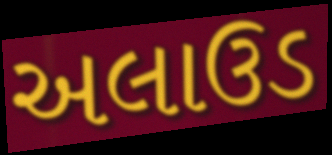
અલાઉડ